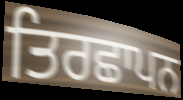
ਤਿਰਛਾਪਨ